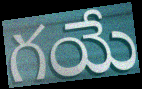
గయే